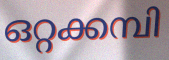
ഒറ്റക്കമ്പി